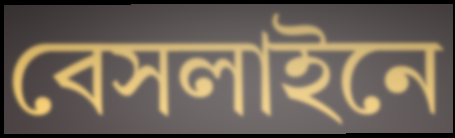
বেসলাইনে